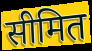
सीमित